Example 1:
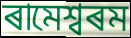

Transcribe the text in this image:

ৰামেশ্বৰম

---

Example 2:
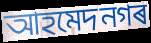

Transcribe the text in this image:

আহমেদনগৰ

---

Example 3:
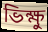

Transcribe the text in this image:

ভিক্ষু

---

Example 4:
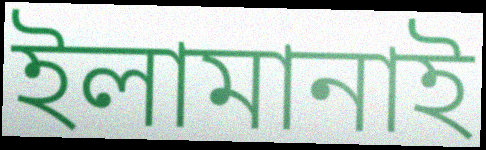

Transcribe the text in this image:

ইলামানাই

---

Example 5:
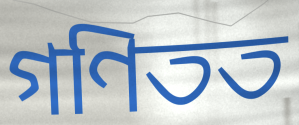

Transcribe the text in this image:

গণিতত